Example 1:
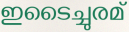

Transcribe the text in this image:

ഇടൈച്ചുരമ്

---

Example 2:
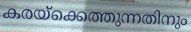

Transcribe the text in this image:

കരയ്ക്കെത്തുന്നതിനും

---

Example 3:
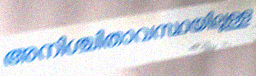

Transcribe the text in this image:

അനിശ്ചിതാവസ്ഥയിലുള്ള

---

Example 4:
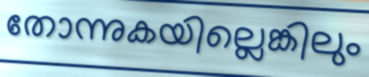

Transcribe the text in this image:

തോന്നുകയില്ലെങ്കിലും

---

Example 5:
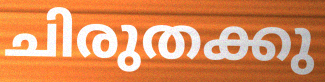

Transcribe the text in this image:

ചിരുതക്കു